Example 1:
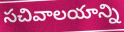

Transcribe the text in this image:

సచివాలయాన్ని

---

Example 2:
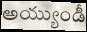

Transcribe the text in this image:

అయ్యుండీ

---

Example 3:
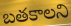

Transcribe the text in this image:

బతకాలని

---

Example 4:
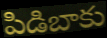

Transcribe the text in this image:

పిడిబాకు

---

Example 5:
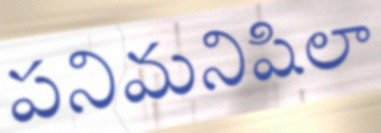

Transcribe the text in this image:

పనిమనిషిలా